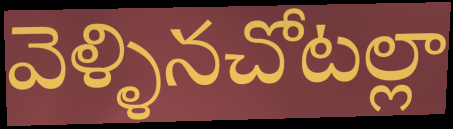
వెళ్ళినచోటల్లా